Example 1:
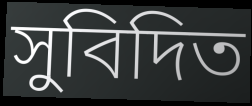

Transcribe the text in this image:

সুবিদিত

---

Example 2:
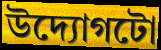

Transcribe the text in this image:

উদ্যোগটো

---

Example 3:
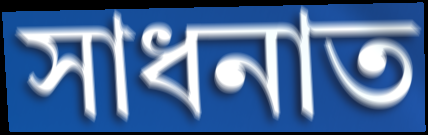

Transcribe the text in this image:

সাধনাত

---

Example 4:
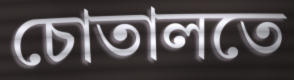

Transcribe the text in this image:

চোতালতে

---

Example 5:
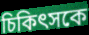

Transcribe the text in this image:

চিকিৎসকে